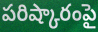
పరిష్కారంపై